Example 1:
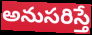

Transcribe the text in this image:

అనుసరిస్తే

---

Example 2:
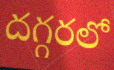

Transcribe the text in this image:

దగ్గరలో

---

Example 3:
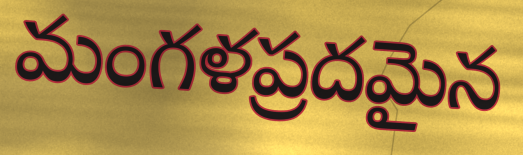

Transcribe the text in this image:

మంగళప్రదమైన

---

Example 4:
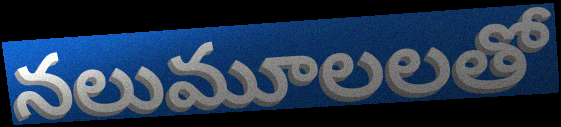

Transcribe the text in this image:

నలుమూలలతో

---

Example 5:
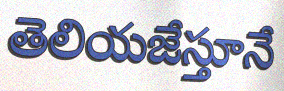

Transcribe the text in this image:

తెలియజేస్తూనే